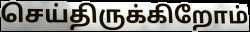
செய்திருக்கிறோம்